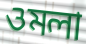
ওমলা